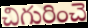
చిగురించె